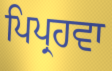
ਪਿਪ੍ਰਹਵਾ